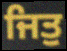
ਜਿਤੁ